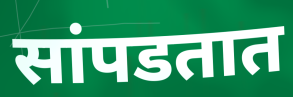
सांपडतात